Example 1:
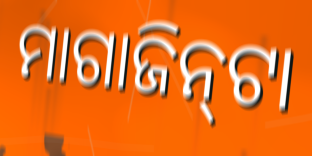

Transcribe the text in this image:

ମାଗାଜିନ୍‌ଟା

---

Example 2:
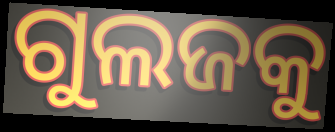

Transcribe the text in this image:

ଗୁଲଜକୁ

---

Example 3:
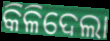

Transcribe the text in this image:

କିଳିଦେଲା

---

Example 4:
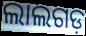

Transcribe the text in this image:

ଲାଲଗଡ଼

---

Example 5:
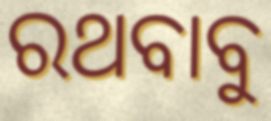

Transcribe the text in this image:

ରଥବାବୁ